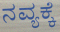
ನವ್ಯಕ್ಕೆ